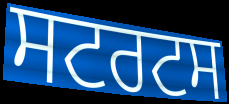
ਸਟਰਟਸ